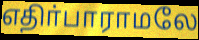
எதிர்பாராமலே